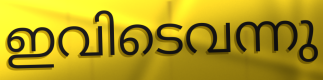
ഇവിടെവന്നു